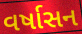
વર્ષાસન